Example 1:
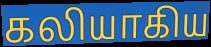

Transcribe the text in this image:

கலியாகிய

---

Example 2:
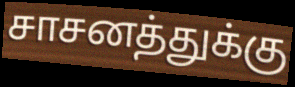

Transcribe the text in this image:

சாசனத்துக்கு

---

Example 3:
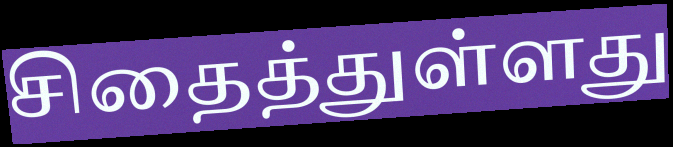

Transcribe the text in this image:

சிதைத்துள்ளது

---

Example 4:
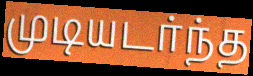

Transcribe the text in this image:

முடியடர்ந்த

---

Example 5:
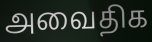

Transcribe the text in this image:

அவைதிக